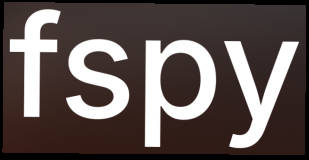
fspy